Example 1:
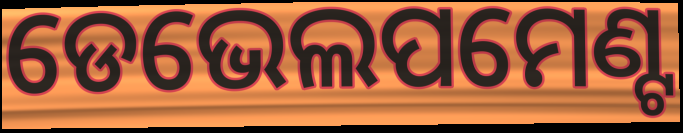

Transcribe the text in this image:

ଡେଭେଲପମେଣ୍ଟ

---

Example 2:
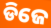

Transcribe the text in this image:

ଡିଜେ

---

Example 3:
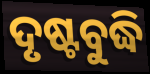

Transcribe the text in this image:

ଦୃଷ୍ଟବୁଦ୍ଧି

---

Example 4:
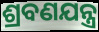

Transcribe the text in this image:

ଶ୍ରବଣଯନ୍ତ୍ର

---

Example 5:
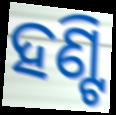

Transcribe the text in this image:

ହଣ୍ଟି